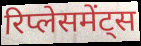
रिप्लेसमेंट्स